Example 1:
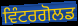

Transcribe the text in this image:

ਵਿੰਟਰਗੋਲਡ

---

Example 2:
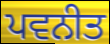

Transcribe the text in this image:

ਪਵਨੀਤ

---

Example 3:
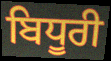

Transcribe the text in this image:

ਬਿਧੂਰੀ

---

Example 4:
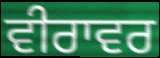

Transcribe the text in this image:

ਵੀਰਾਵਰ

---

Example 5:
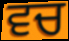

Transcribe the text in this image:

ਵਚ